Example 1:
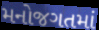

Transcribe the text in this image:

મનોજગતમાં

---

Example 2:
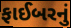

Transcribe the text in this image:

ફાઈબરનું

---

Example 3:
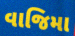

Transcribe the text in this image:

વાજિમા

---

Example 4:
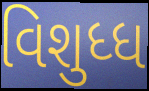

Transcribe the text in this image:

વિશુધ્ધ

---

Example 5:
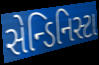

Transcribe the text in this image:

સેન્ડિનિસ્ટા